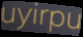
uyirpu